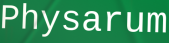
Physarum